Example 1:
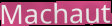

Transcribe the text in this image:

Machaut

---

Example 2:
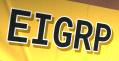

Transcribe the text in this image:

EIGRP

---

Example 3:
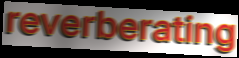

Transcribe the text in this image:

reverberating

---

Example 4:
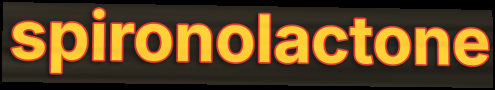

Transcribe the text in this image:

spironolactone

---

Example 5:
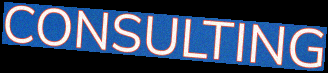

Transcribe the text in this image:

CONSULTING